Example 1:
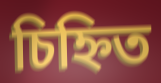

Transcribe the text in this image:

চিহ্নিত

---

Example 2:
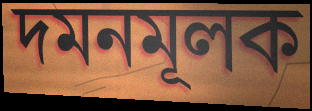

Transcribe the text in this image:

দমনমূলক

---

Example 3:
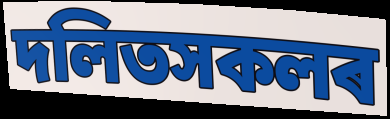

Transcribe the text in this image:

দলিতসকলৰ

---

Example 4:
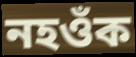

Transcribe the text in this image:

নহওঁক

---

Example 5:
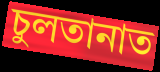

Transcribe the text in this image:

চুলতানাত